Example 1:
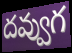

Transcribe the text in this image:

దవ్వుగ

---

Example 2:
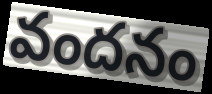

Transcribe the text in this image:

వందనం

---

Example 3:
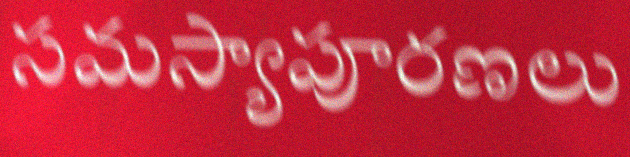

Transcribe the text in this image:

సమస్యాపూరణలు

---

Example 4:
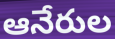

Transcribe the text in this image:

ఆనేరుల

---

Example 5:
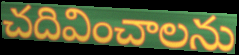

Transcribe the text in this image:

చదివించాలను